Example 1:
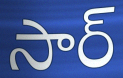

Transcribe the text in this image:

సార్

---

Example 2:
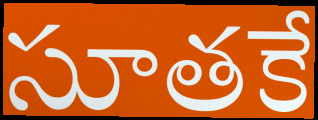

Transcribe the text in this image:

సూతకే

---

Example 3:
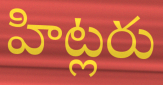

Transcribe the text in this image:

హిట్లరు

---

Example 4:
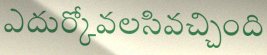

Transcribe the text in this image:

ఎదుర్కోవలసివచ్చింది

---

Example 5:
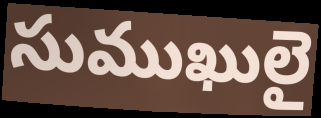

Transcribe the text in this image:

సుముఖులై